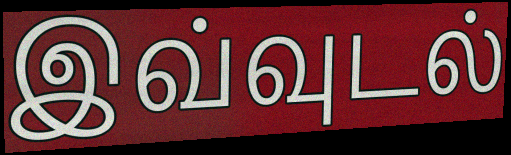
இவ்வுடல்